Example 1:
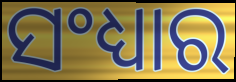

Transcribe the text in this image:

ସଂଧ୍ୟାର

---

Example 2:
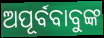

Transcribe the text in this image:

ଅପୂର୍ବବାବୁଙ୍କ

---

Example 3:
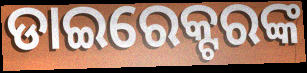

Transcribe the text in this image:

ଡାଇରେକ୍ଟରଙ୍କ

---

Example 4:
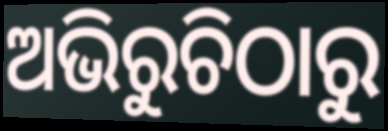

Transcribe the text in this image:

ଅଭିରୁଚିଠାରୁ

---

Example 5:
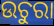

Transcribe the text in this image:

ଉଚୁରା